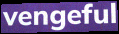
vengeful